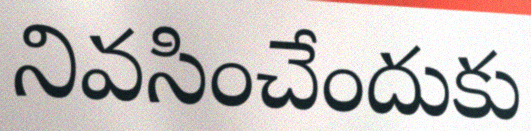
నివసించేందుకు